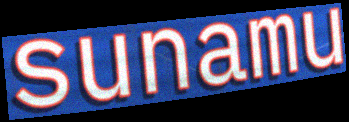
sunamu